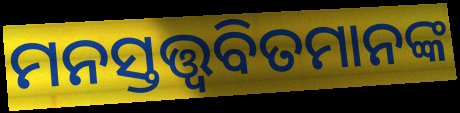
ମନସ୍ତତ୍ତ୍ୱବିତମାନଙ୍କ